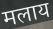
मलाय